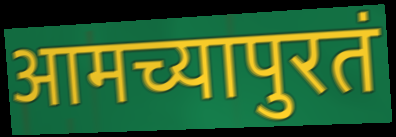
आमच्यापुरतं